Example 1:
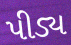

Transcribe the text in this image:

પીડ્ય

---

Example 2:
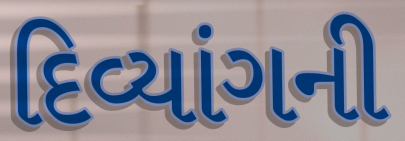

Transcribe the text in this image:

દિવ્યાંગની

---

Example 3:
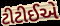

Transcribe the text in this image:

ટીટીઈએ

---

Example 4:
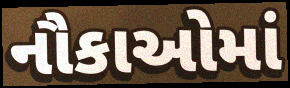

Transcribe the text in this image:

નૌકાઓમાં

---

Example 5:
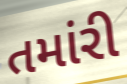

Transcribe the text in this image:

તમાંરી